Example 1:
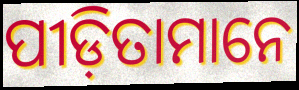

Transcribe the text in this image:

ପୀଡ଼ିତାମାନେ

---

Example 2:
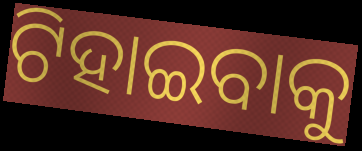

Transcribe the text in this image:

ଟିହାଇବାକୁ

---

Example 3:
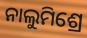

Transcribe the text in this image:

ନାଲୁମିଶ୍ରେ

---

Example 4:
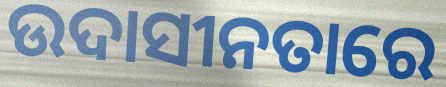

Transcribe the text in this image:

ଉଦାସୀନତାରେ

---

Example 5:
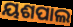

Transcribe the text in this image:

ୟଶପାଲ